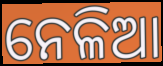
ନେଳିଆ